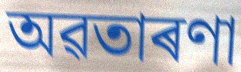
অৱতাৰণা